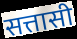
सत्तासी